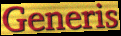
Generis